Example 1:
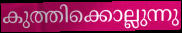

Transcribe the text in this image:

കുത്തിക്കൊല്ലുന്നു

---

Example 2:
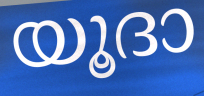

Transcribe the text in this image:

യൂദാ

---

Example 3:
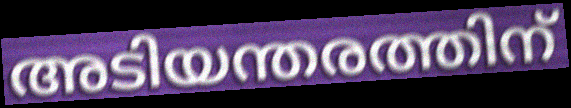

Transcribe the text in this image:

അടിയന്തരത്തിന്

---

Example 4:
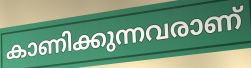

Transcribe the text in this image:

കാണിക്കുന്നവരാണ്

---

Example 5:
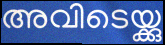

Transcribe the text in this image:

അവിടെയ്ക്കു